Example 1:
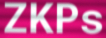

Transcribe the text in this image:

ZKPs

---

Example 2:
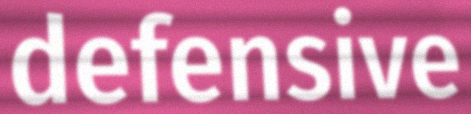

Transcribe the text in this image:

defensive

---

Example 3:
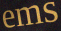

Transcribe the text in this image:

ems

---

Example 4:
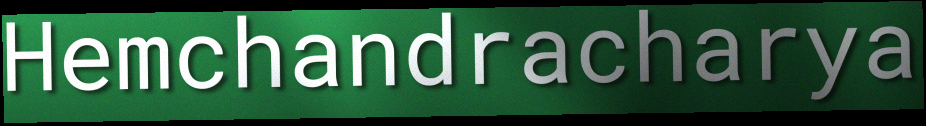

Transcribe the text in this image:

Hemchandracharya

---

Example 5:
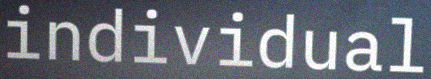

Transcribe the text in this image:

individual